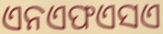
ଏନଏଫଏସଏ